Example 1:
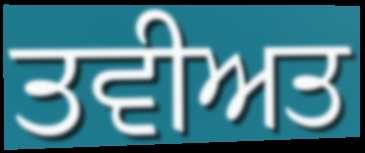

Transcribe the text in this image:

ਤਵੀਅਤ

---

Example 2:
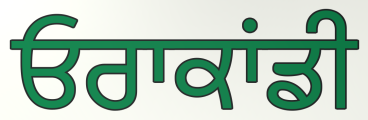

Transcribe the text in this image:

ਓਰਾਕਾਂਡੀ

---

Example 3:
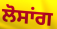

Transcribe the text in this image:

ਲੋਸਾਂਗ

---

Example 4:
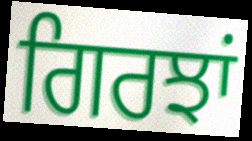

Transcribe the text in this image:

ਗਿਰਝਾਂ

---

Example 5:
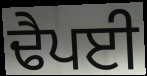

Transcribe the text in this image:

ਢੈਪਈ